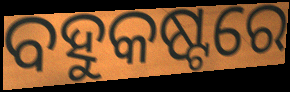
ବହୁକଷ୍ଟରେ